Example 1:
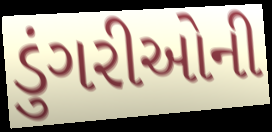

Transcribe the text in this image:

ડુંગરીઓની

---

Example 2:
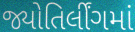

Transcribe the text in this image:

જ્યોતિર્લીંગમાં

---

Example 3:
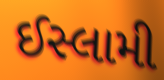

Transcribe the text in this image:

ઈસ્લામી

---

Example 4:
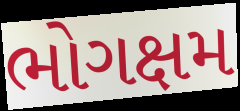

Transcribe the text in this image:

ભોગક્ષમ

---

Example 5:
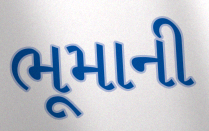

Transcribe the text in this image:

ભૂમાની